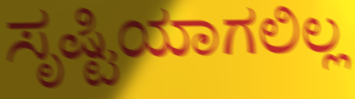
ಸೃಷ್ಟಿಯಾಗಲಿಲ್ಲ